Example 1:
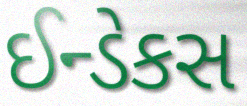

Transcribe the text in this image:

ઈન્ડેકસ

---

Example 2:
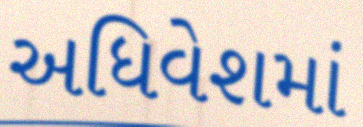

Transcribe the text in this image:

અધિવેશમાં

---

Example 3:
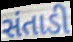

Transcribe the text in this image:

સંતાડી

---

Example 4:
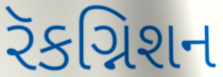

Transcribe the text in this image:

રૅકગ્નિશન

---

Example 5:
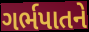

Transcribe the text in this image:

ગર્ભપાતને